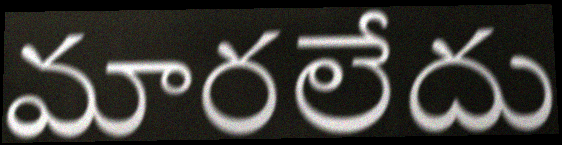
మారలేదు